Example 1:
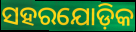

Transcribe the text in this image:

ସହରଯୋଡ଼ିକ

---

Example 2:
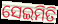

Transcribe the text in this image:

ସେଇମିତି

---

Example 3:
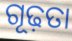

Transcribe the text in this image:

ଗୂଢ଼ତା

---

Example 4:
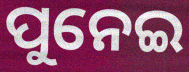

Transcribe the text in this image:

ପୁନେଇ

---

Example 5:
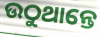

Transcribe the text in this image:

ଉଠୁଥାନ୍ତେ